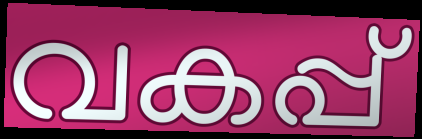
വകപ്പ്